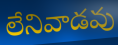
లేనివాడవు